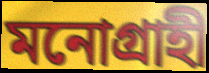
মনোগ্ৰাহী